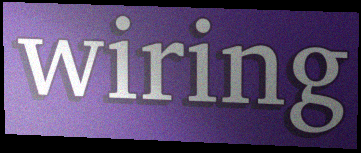
wiring